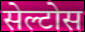
सेल्टोस